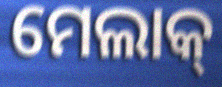
ମେଲାକ୍